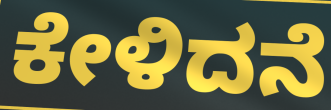
ಕೇಳಿದನೆ